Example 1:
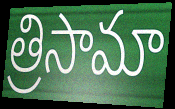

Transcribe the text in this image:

త్రిసామా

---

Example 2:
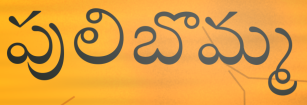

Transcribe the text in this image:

పులిబొమ్మ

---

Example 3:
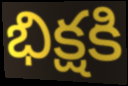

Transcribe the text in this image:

భిక్షకి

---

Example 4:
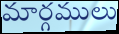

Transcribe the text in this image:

మార్గములు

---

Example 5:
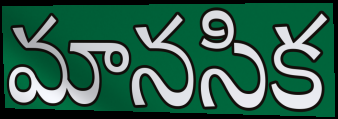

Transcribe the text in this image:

మానసిక